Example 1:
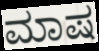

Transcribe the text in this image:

ಮಾಷ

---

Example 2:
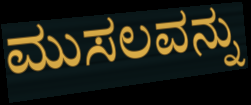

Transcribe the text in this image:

ಮುಸಲವನ್ನು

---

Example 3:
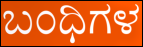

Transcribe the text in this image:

ಬಂಧಿಗಳ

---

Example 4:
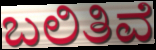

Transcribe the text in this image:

ಬಲಿತಿವೆ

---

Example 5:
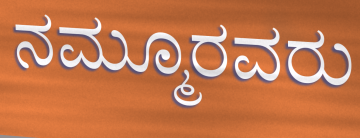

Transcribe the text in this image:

ನಮ್ಮೂರವರು